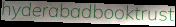
hyderabadbooktrust